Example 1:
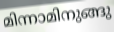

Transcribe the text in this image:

മിന്നാമിനുങ്ങു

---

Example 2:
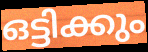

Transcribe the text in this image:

ഒട്ടിക്കും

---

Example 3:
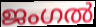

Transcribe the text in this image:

ജംഗൽ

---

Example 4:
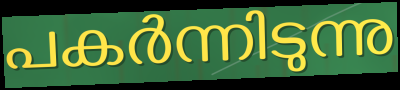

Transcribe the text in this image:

പകർന്നിടുന്നു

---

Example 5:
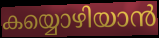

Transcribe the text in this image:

കയ്യൊഴിയാൻ